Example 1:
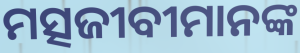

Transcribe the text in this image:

ମତ୍ସଜୀବୀମାନଙ୍କ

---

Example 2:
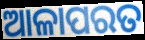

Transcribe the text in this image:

ଆଳାପରତ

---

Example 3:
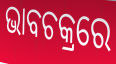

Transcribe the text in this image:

ଭାବଚକ୍ରରେ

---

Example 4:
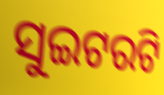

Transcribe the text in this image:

ସୁଇଟରଟି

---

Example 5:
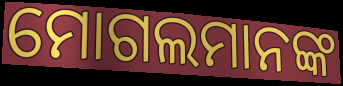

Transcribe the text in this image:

ମୋଗଲମାନଙ୍କ